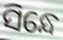
ସିନ୍ଧେ